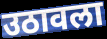
उठावला